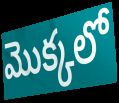
మొక్కలో